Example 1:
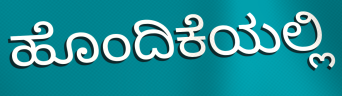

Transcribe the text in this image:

ಹೊಂದಿಕೆಯಲ್ಲಿ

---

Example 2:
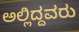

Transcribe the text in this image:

ಅಲ್ಲಿದ್ದವರು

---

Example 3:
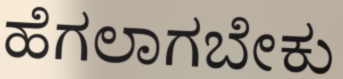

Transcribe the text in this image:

ಹೆಗಲಾಗಬೇಕು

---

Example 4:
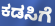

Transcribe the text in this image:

ಕಡಸಿಗೆ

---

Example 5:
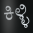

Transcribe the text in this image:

ಕಿಳ್ಳಿ